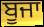
ਬੂਜਾ